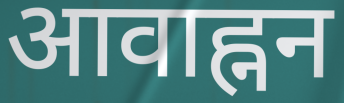
आवाह्नन